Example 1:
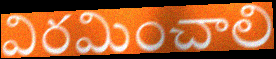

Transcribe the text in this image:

విరమించాలి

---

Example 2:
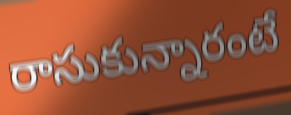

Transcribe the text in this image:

రాసుకున్నారంటే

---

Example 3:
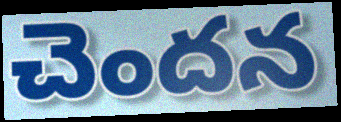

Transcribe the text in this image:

చెందన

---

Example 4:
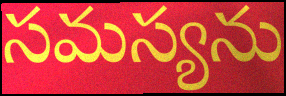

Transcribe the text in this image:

సమస్యను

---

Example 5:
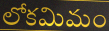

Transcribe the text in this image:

లోకమిమం